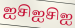
ஐசிஐசிஐ